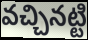
వచ్చినట్టి